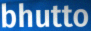
bhutto